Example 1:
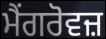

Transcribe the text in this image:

ਮੈਂਗਰੋਵਜ਼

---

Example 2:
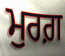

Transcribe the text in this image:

ਮੁਰਗ਼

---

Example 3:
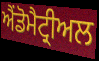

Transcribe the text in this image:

ਐਂਡੋਮੈਟ੍ਰੀਅਲ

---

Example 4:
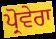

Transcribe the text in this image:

ਪ੍ਰੋਵੇਰਾ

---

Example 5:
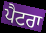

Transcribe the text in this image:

ਪੈਟਰਾ